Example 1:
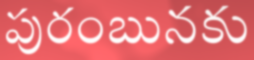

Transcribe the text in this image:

పురంబునకు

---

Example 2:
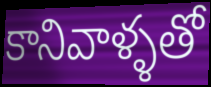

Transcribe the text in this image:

కానివాళ్ళతో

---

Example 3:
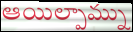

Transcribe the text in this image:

ఆయిల్పామ్ను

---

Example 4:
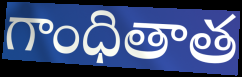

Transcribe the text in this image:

గాంధితాత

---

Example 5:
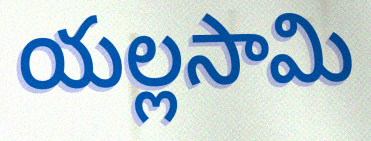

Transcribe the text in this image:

యల్లసామి